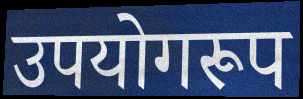
उपयोगरूप